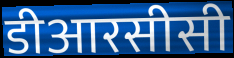
डीआरसीसी